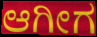
ಆಗೀಗ